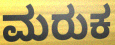
ಮರುಕ